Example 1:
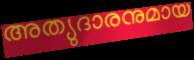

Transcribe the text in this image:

അത്യുദാരനുമായ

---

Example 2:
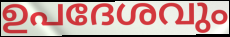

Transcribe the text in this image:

ഉപദേശവും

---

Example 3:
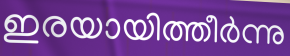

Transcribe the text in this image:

ഇരയായിത്തീർന്നു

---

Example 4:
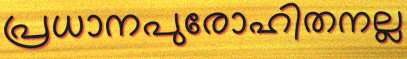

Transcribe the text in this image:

പ്രധാനപുരോഹിതനല്ല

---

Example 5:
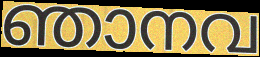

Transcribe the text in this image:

ഞാനവ